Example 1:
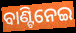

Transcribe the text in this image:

ବାଣ୍ଟିନେଇ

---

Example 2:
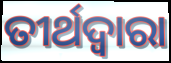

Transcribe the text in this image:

ତୀର୍ଥଦ୍ବାରା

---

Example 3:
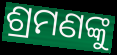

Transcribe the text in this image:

ଶ୍ରମଣଙ୍କୁ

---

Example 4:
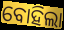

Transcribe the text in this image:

ବୋହିଲା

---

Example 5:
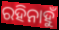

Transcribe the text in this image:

ରହିନାହୁଁ